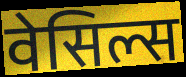
वेसिल्स